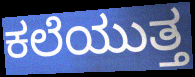
ಕಲೆಯುತ್ತ